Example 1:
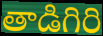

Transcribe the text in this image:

తాడిగిరి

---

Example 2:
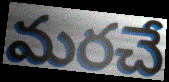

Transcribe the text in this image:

మరచే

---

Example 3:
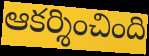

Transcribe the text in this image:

ఆకర్శించింది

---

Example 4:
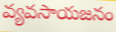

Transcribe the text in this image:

వ్యవసాయజనం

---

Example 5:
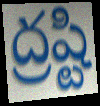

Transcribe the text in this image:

ద్రష్టి